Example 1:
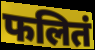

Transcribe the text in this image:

फलितं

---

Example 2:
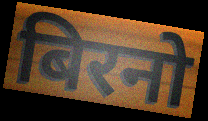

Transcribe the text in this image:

बिरनो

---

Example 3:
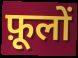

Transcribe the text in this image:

फ़ूलों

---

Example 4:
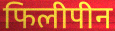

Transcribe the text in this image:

फिलीपीन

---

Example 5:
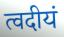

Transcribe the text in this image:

त्वदीयं